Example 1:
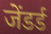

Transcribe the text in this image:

जेंडर्ड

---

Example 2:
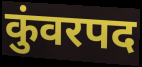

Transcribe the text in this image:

कुंवरपद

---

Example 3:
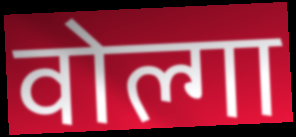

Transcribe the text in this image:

वोल्गा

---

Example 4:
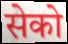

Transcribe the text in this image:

सेको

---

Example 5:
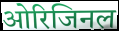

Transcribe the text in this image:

ओरिजिनल